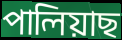
পালিয়াছ